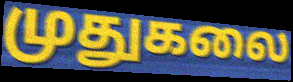
முதுகலை